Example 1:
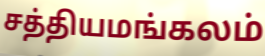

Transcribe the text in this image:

சத்தியமங்கலம்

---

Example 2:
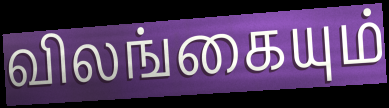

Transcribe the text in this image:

விலங்கையும்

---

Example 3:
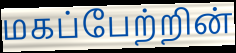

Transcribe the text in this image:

மகப்பேற்றின்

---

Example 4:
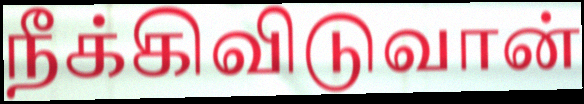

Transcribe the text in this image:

நீக்கிவிடுவான்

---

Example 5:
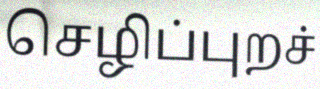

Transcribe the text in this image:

செழிப்புறச்